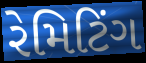
રેમિટિંગ